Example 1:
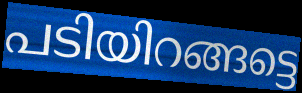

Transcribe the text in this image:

പടിയിറങ്ങട്ടെ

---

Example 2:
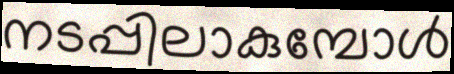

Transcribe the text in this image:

നടപ്പിലാകുമ്പോൾ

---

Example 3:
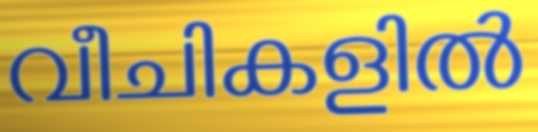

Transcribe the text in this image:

വീചികളിൽ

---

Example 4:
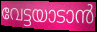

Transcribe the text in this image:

വേട്ടയാടാൻ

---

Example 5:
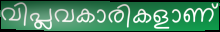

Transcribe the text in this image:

വിപ്ലവകാരികളാണ്